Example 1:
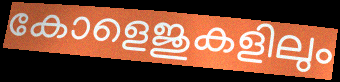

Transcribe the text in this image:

കോളെജുകളിലും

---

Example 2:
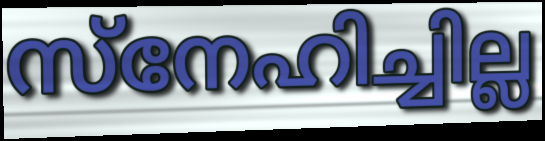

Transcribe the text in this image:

സ്നേഹിച്ചില്ല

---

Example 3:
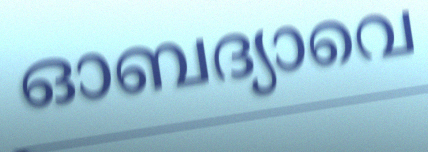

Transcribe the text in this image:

ഓബദ്യാവെ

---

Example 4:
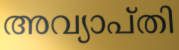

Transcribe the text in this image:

അവ്യാപ്തി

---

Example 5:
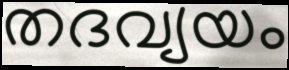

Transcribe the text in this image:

തദവ്യയം